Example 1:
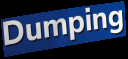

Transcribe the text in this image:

Dumping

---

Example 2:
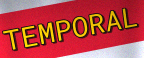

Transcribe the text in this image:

TEMPORAL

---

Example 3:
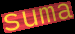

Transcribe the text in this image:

suma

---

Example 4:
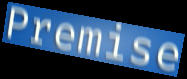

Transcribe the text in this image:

Premise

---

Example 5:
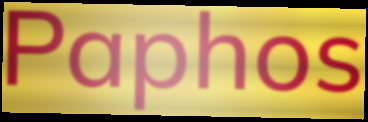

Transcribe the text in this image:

Paphos